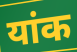
यांक